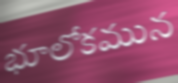
భూలోకమున